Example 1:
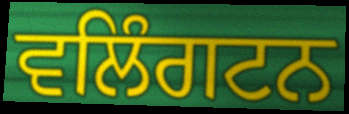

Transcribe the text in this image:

ਵਲਿੰਗਟਨ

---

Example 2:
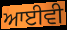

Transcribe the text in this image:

ਆਈਵੀ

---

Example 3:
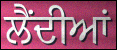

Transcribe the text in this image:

ਲੈਂਦੀਆਂ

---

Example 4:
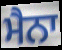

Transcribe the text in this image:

ਮੈਨਾ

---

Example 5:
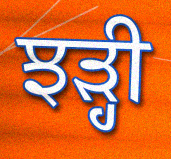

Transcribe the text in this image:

ਝੜ੍ਹੀ